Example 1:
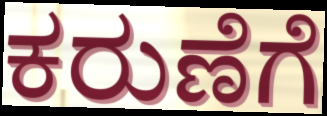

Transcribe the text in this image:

ಕರುಣೆಗೆ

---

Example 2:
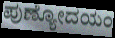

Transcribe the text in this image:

ಪುಣ್ಯೋದಯಂ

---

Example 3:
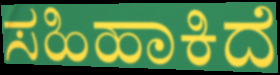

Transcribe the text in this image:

ಸಹಿಹಾಕಿದೆ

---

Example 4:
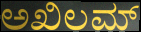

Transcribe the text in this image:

ಅಖಿಲಮ್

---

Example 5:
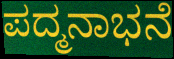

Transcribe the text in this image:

ಪದ್ಮನಾಭನೆ